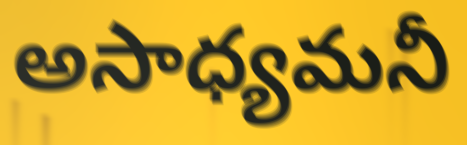
అసాధ్యమనీ